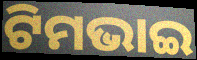
ଟିମଭାଇ